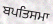
ਬਪਤਿਸਮਾ